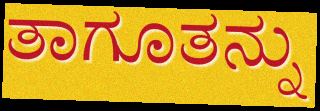
ತಾಗೂತನ್ನು